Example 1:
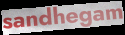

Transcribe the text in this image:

sandhegam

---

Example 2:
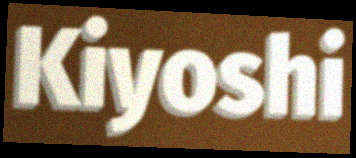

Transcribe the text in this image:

Kiyoshi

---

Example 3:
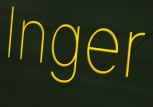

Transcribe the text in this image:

Inger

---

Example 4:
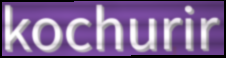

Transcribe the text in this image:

kochurir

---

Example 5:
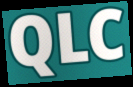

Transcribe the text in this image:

QLC